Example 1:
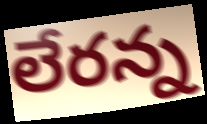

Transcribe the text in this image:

లేరన్న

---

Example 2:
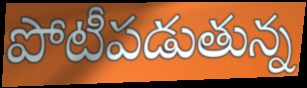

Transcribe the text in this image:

పోటీపడుతున్న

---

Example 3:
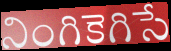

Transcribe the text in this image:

నింగికెగిసే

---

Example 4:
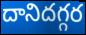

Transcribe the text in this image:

దానిదగ్గర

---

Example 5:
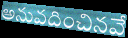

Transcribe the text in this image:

అనువదించినవే